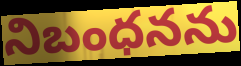
నిబంధనను